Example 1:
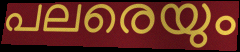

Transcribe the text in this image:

പലരെയും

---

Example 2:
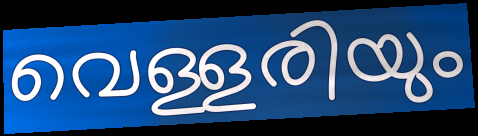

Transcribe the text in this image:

വെള്ളരിയും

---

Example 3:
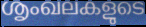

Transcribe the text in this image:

ശൃംഖലകളുടെ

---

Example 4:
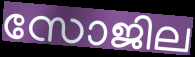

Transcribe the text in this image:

സോജില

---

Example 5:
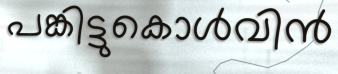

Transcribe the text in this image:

പങ്കിട്ടുകൊൾവിൻ